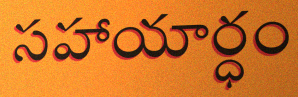
సహాయార్ధం